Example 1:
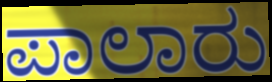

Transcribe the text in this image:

ಪಾಲಾರು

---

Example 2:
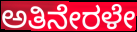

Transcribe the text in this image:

ಅತಿನೇರಳೇ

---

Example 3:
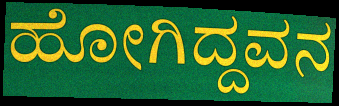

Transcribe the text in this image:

ಹೋಗಿದ್ದವನ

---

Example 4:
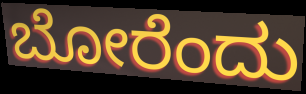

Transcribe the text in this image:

ಬೋರೆಂದು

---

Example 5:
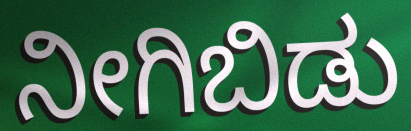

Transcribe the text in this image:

ನೀಗಿಬಿಡು